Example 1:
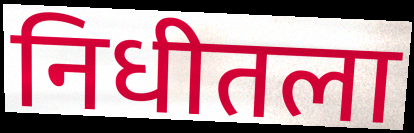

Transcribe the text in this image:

निधीतला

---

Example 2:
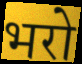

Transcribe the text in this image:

भरो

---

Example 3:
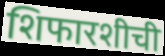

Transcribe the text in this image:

शिफारशीची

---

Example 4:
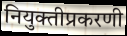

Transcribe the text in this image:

नियुक्तीप्रकरणी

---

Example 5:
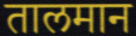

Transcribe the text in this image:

तालमान